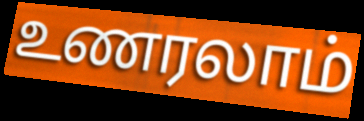
உணரலாம்